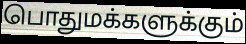
பொதுமக்களுக்கும்